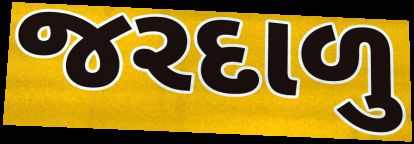
જરદાળુ